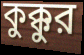
কুক্কুর